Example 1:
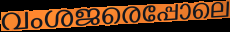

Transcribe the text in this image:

വംശജരെപ്പോലെ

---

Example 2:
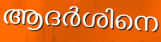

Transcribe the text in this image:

ആദർശിനെ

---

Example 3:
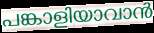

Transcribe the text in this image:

പങ്കാളിയാവാൻ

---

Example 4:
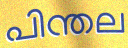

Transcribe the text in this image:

പിന്തല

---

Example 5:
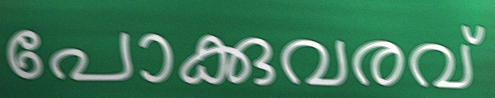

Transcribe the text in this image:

പോക്കുവരവ്